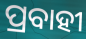
ପ୍ରବାହୀ